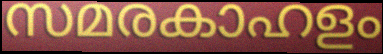
സമരകാഹളം